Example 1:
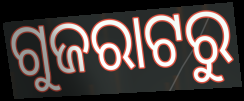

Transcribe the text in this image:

ଗୁଜରାଟରୁ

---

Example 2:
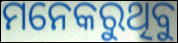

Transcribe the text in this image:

ମନେକରୁଥିବୁ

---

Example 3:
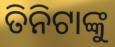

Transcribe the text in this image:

ତିନିଟାଙ୍କୁ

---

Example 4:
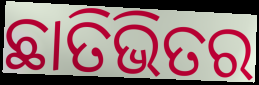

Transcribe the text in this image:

ଛାତିଭିତର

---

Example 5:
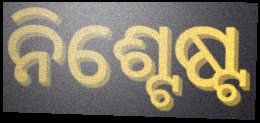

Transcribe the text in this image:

ନିଶ୍ଟେଷ୍ଟ